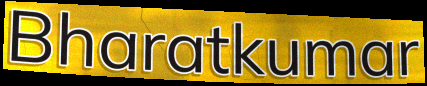
Bharatkumar